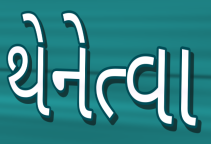
થેનેત્વા